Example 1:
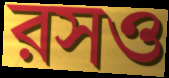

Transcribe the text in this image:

রসও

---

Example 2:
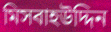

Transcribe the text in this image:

মিসবাহউদ্দিন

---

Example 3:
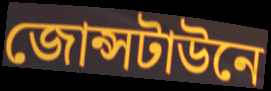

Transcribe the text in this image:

জোন্সটাউনে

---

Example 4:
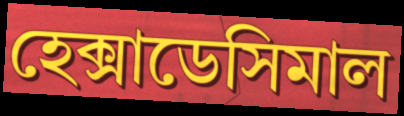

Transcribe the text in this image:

হেক্সাডেসিমাল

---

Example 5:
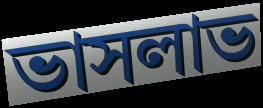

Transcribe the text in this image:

ভাসলাভ